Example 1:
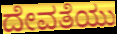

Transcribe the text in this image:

ದೇವತೆಯು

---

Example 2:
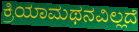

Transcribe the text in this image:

ಕ್ರಿಯಾಮಥನವಿಲ್ಲದೆ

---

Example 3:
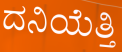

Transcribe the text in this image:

ದನಿಯೆತ್ತಿ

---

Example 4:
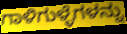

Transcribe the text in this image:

ಗಾಳಿಗುಳ್ಳೆಗಳನ್ನು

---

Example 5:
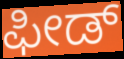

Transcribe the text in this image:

ಫೀಡ್